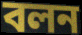
বলন